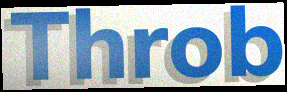
Throb